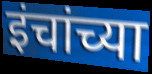
इंचांच्या